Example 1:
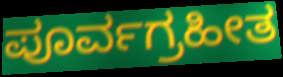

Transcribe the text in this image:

ಪೂರ್ವಗ್ರಹೀತ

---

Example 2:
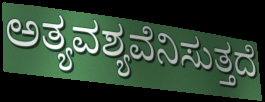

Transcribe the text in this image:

ಅತ್ಯವಶ್ಯವೆನಿಸುತ್ತದೆ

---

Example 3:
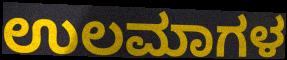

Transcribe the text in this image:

ಉಲಮಾಗಳ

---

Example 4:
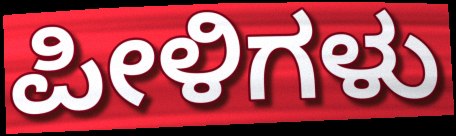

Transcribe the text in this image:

ಪೀಳಿಗಳು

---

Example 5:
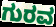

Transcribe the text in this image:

ಗುರವ